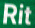
Rit